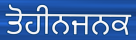
ਤੋਹੀਨਜਨਕ